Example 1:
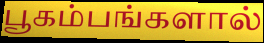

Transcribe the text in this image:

பூகம்பங்களால்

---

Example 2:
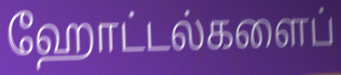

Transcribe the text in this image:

ஹோட்டல்களைப்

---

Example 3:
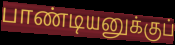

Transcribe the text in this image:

பாண்டியனுக்குப்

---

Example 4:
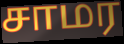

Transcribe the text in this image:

சாமர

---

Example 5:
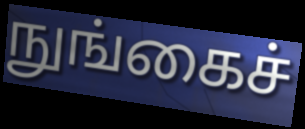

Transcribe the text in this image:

நுங்கைச்